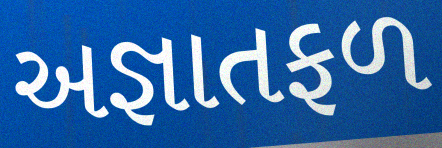
અજ્ઞાતફળ